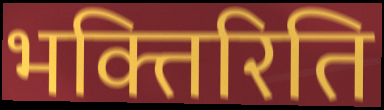
भक्तिरिति